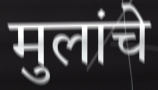
मुलांचे